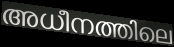
അധീനത്തിലെ